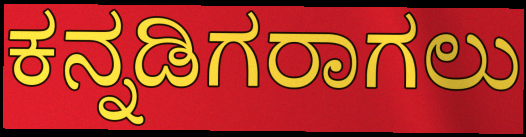
ಕನ್ನಡಿಗರಾಗಲು